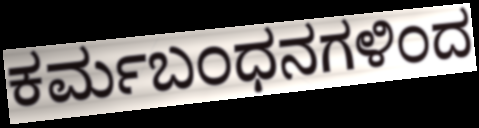
ಕರ್ಮಬಂಧನಗಳಿಂದ